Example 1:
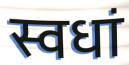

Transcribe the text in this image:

स्वधां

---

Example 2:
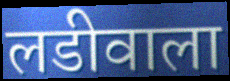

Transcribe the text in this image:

लडीवाला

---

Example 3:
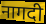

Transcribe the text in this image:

नागदी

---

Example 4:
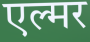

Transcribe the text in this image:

एल्मर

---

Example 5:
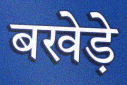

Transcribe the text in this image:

बखेड़े